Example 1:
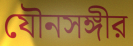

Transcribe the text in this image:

যৌনসঙ্গীর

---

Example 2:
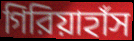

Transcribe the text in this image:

গিরিয়াহাঁস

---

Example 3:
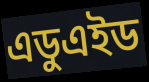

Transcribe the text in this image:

এডুএইড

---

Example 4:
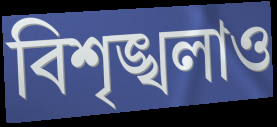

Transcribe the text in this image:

বিশৃঙ্খলাও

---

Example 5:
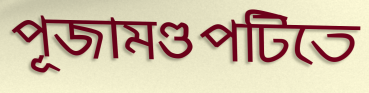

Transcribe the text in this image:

পূজামণ্ডপটিতে